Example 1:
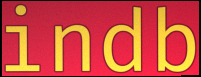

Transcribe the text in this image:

indb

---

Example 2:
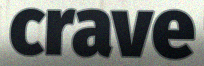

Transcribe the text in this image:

crave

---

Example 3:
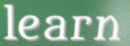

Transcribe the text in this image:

learn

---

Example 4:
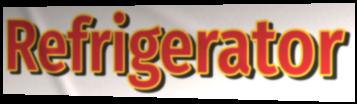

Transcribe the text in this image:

Refrigerator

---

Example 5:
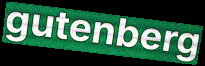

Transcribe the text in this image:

gutenberg